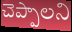
చెప్పాలని